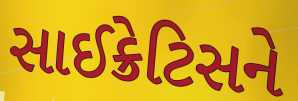
સાઈક્રેટિસને